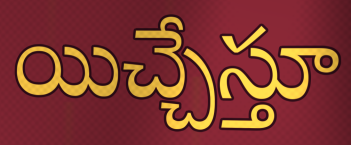
యిచ్చేస్తూ